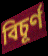
বিচূর্ণ